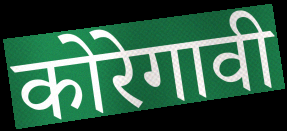
कोरेगावी